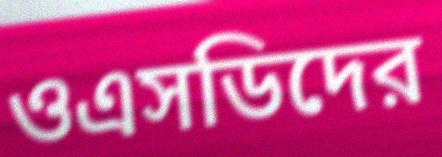
ওএসডিদের